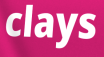
clays